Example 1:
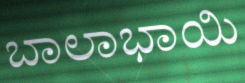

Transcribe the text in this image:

ಬಾಲಾಭಾಯಿ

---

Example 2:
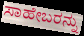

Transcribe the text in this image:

ಸಾಹೇಬರನ್ನು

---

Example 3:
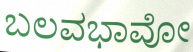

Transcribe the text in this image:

ಬಲವಭಾವೋ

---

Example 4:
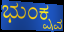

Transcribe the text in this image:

ಭುಂಕ್ಷ್ವ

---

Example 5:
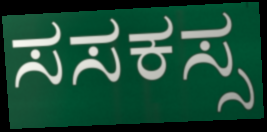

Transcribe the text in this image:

ಸಸಕಸ್ಸ